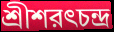
শ্রীশরৎচন্দ্র